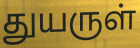
துயருள்